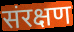
संरक्षण